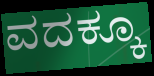
ವದಕ್ಕೂ